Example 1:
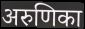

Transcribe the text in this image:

अरुणिका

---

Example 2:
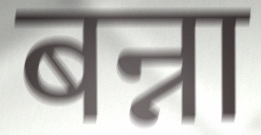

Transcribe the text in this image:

बन्ना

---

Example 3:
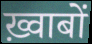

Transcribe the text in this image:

ख़्वाबों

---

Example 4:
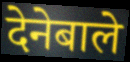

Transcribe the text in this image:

देनेबाले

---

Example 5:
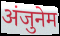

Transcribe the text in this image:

अंजुनेम